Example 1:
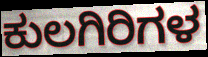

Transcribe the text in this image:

ಕುಲಗಿರಿಗಳ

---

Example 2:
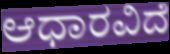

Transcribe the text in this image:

ಆಧಾರವಿದೆ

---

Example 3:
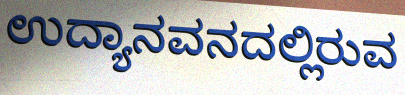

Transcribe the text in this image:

ಉದ್ಯಾನವನದಲ್ಲಿರುವ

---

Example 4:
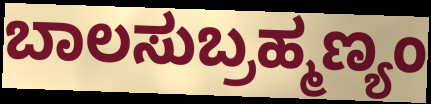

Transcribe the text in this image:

ಬಾಲಸುಬ್ರಹ್ಮಣ್ಯಂ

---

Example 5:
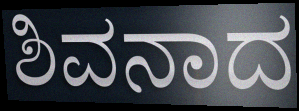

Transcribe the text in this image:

ಶಿವನಾದ